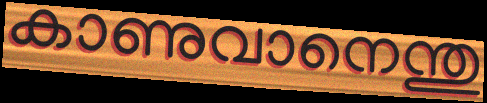
കാണുവാനെന്തു